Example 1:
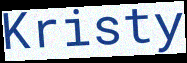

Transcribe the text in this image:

Kristy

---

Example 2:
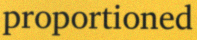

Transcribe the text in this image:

proportioned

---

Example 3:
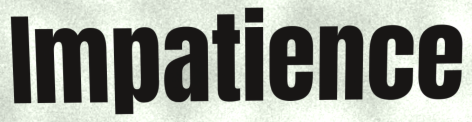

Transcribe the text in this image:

Impatience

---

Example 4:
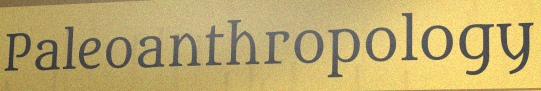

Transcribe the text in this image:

Paleoanthropology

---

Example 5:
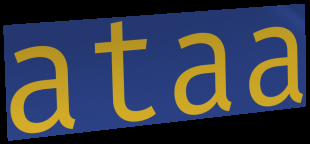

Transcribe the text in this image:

ataa